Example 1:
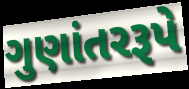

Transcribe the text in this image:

ગુણાંતરરૂપે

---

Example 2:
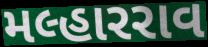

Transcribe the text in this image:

મલ્હારરાવ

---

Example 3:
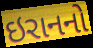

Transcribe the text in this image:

ઇરાનનો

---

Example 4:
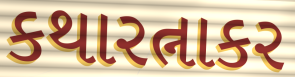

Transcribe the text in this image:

કથારત્નાકર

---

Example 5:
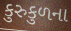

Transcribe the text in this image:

કુરુકુળના